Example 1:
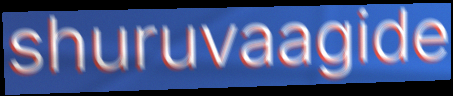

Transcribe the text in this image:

shuruvaagide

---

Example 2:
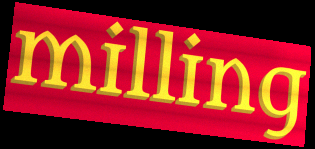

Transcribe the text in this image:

milling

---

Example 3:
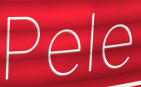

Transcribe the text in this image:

Pele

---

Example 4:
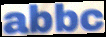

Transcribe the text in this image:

abbc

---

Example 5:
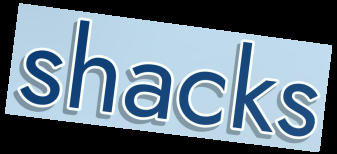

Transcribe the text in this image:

shacks